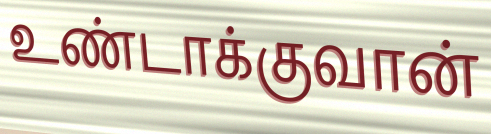
உண்டாக்குவான்